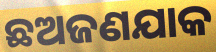
ଛଅଜଣଯାକ